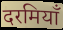
दरमियाँ